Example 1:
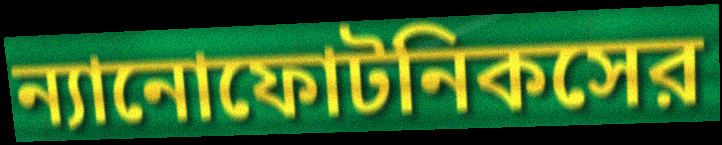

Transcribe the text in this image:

ন্যানোফোটনিকসের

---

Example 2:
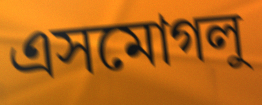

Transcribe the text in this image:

এসমোগলু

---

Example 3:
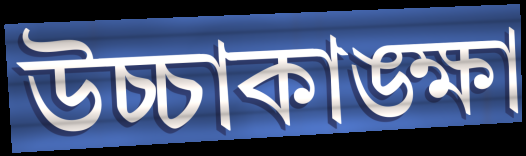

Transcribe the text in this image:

উচ্চাকাঙ্ক্ষা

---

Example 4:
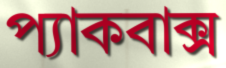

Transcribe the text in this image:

প্যাকবাক্স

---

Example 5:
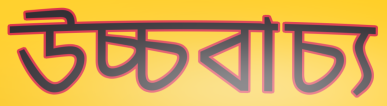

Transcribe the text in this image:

উচ্চবাচ্য